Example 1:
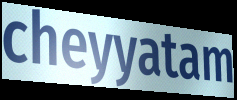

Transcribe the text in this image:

cheyyatam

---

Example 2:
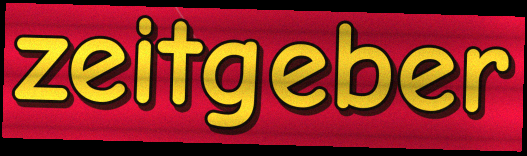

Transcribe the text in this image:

zeitgeber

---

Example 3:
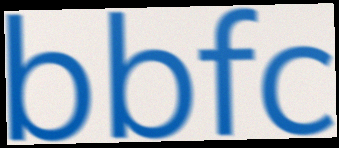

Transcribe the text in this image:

bbfc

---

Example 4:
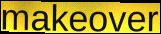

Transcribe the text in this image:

makeover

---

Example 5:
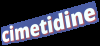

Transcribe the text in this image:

cimetidine